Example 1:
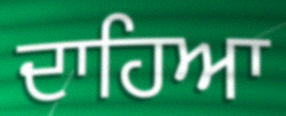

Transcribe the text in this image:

ਦਾਹਿਆ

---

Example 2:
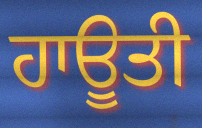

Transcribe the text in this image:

ਹਾਊਤੀ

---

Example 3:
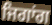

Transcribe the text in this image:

ਜਿਗਾਂਗ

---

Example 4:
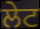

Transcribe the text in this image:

ਲੇਟ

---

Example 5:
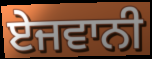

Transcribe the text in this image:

ਏਜਵਾਨੀ